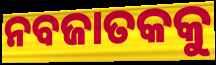
ନବଜାତକକୁ